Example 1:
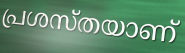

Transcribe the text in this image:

പ്രശസ്തയാണ്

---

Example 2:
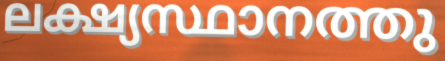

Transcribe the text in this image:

ലക്ഷ്യസ്ഥാനത്തു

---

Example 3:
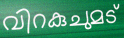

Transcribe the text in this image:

വിറകുചുമട്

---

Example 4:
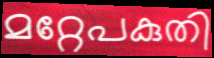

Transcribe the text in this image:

മറ്റേപകുതി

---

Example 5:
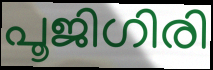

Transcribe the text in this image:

പൂജിഗിരി